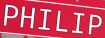
PHILIP